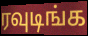
ரவுடிங்க